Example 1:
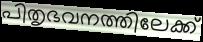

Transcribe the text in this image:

പിതൃഭവനത്തിലേക്ക്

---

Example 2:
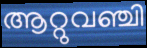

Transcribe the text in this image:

ആറ്റുവഞ്ചി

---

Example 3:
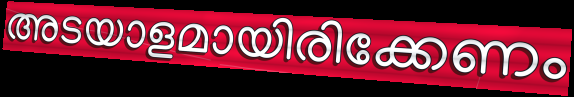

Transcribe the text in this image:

അടയാളമായിരിക്കേണം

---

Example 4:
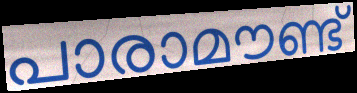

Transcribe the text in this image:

പാരാമൗണ്ട്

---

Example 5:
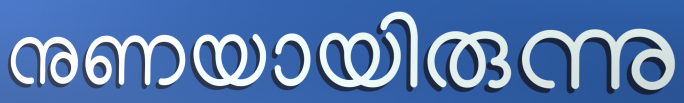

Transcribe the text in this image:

നുണയായിരുന്നു